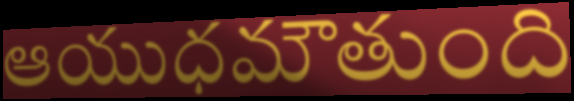
ఆయుధమౌతుంది